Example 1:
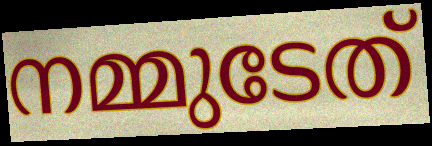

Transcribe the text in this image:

നമ്മുടേത്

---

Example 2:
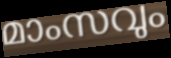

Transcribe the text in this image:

മാംസവും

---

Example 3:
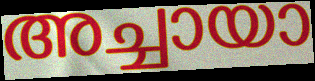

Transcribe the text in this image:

അച്ചായാ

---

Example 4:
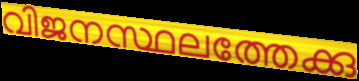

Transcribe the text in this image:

വിജനസ്ഥലത്തേക്കു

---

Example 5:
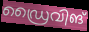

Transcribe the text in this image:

ഡ്രൈവിങ്